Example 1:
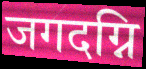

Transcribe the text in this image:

जगदग्नि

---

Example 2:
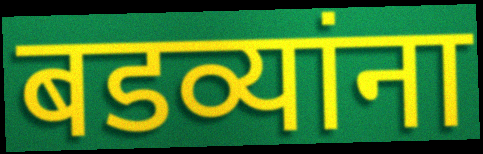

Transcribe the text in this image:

बडव्यांना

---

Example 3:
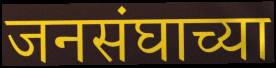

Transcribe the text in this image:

जनसंघाच्या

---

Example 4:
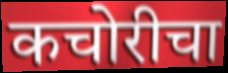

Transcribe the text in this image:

कचोरीचा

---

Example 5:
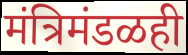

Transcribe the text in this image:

मंत्रिमंडळही